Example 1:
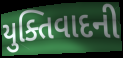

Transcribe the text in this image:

યુક્તિવાદની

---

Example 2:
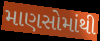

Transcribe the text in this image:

માણસોમાંથી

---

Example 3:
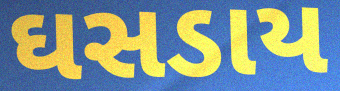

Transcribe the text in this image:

ઘસડાય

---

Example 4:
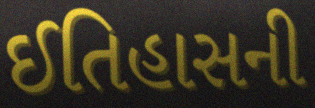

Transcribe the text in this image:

ઈતિહાસની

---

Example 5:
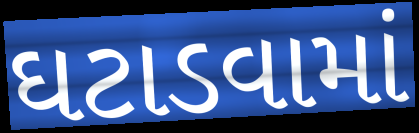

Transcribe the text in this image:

ઘટાડવામાં